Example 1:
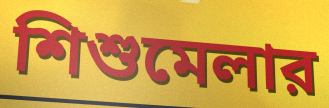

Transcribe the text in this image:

শিশুমেলার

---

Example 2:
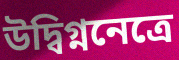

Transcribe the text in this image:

উদ্বিগ্ননেত্রে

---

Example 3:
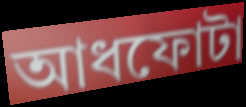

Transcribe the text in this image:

আধফোটা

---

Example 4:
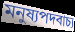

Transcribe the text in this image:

মনুষ্যপদবাচ্য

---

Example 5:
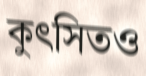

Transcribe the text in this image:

কুৎসিতও